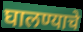
घालण्याचे